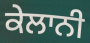
ਕੇਲਾਨੀ